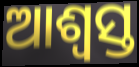
ଆଶ୍ଵସ୍ତ